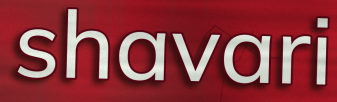
shavari